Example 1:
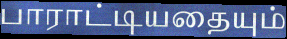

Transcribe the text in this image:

பாராட்டியதையும்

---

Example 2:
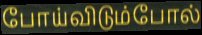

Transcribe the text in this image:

போய்விடும்போல்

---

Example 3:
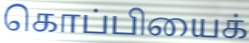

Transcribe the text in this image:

கொப்பியைக்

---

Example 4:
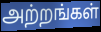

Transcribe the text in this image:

அற்றங்கள்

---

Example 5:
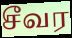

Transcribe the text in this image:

சீவர